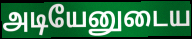
அடியேனுடைய